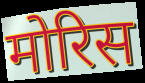
मोरिस